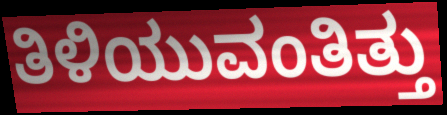
ತಿಳಿಯುವಂತಿತ್ತು